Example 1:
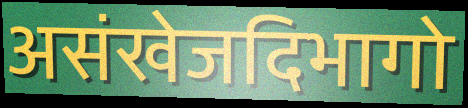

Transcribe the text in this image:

असंखेजदिभागो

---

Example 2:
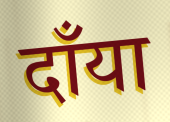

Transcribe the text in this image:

दाँया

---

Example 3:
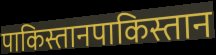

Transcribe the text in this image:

पाकिस्तानपाकिस्तान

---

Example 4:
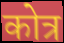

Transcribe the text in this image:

कोत्र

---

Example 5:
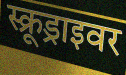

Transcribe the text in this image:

स्क्रूड्राइवर